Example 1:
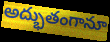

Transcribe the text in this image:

అద్భుతంగానూ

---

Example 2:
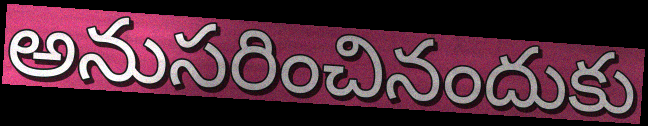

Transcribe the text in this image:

అనుసరించినందుకు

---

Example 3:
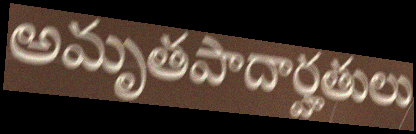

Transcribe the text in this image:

అమృతపాదార్హతులు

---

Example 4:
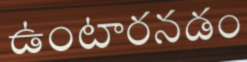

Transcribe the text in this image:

ఉంటారనడం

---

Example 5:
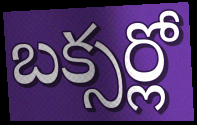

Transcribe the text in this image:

బక్సర్లో